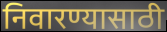
निवारण्यासाठी